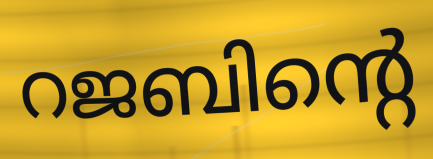
റജബിന്റെ